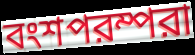
বংশপরম্পরা